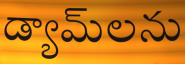
డ్యామ్‌లను